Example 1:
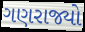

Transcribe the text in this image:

ગણરાજ્યો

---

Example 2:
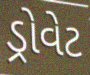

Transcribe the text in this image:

ડ્રોવેટ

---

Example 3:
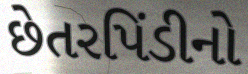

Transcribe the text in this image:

છેતરપિંડીનો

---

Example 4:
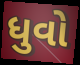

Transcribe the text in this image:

ધુવો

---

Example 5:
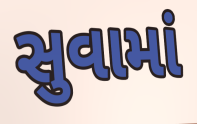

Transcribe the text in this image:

સુવામાં